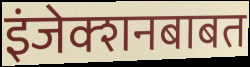
इंजेक्शनबाबत